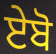
ਏਬੋ